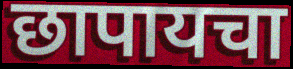
छापायचा